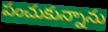
పంచుకున్నాను